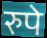
रुपे